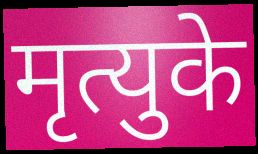
मृत्युके